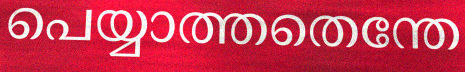
പെയ്യാത്തതെന്തേ